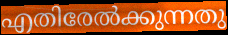
എതിരേൽക്കുന്നതു